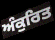
ਅੰਕੁਰਿਤ